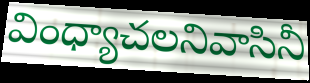
వింధ్యాచలనివాసినీ